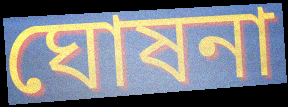
ঘোষনা